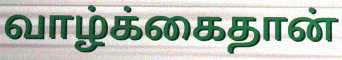
வாழ்க்கைதான்